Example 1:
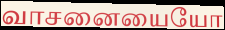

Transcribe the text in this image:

வாசனையையோ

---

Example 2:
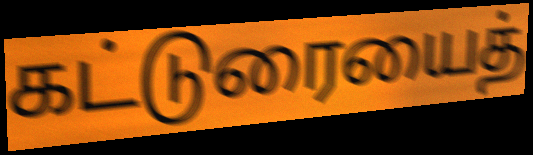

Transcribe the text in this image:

கட்டுரையைத்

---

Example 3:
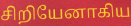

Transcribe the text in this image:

சிறியேனாகிய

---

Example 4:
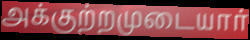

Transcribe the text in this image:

அக்குற்றமுடையார்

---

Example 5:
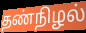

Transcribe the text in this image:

தண்நிழல்